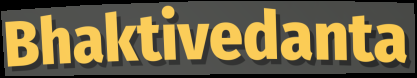
Bhaktivedanta